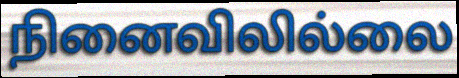
நினைவிலில்லை